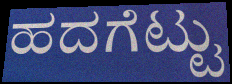
ಹದಗೆಟ್ಟು